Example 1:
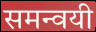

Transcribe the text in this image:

समन्वयी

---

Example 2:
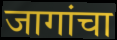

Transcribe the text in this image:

जागांचा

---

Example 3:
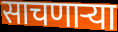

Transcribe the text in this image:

साचणार्‍या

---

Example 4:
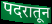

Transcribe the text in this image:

पदरातून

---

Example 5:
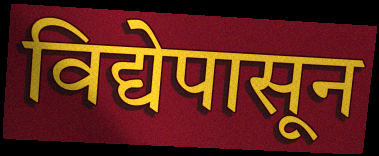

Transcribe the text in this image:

विद्येपासून